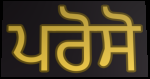
ਪਰੋਸੋ